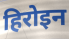
हिरोइन